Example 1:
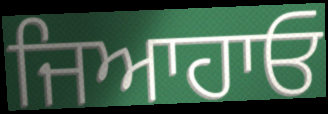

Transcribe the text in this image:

ਜਿਆਹਾਓ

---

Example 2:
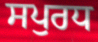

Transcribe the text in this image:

ਸਪੁਰਧ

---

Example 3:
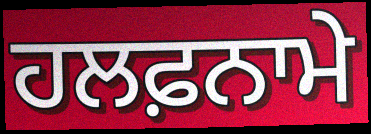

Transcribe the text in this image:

ਹਲਫ਼ਨਾਮੇ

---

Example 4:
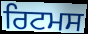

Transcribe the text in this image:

ਰਿਟਮਸ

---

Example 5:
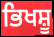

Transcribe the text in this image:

ਭਿਖਸ਼ੂ